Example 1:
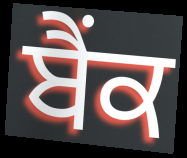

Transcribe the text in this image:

ਬੈਂਕ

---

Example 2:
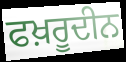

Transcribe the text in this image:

ਫਖ਼ਰੂਦੀਨ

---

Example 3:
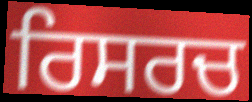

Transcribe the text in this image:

ਰਿਸਰਚ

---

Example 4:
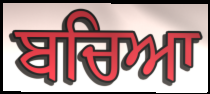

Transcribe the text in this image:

ਬਚਿਆ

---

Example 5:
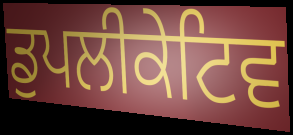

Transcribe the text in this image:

ਡੁਪਲੀਕੇਟਿਵ